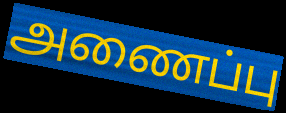
அணைப்பு